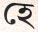
হে